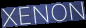
XENON